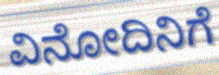
ವಿನೋದಿನಿಗೆ